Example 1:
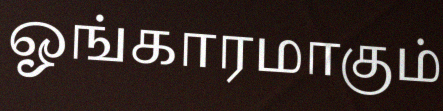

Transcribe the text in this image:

ஓங்காரமாகும்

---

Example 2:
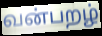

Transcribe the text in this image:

வன்பறழ்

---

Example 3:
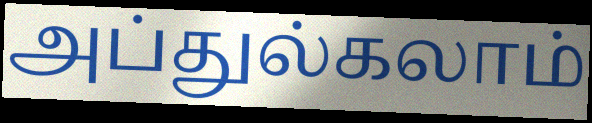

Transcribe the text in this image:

அப்துல்கலாம்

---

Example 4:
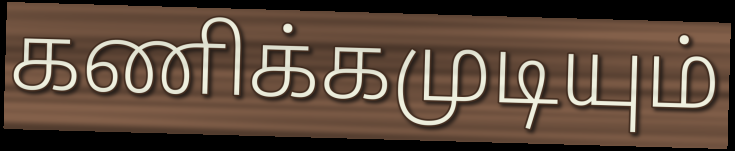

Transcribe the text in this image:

கணிக்கமுடியும்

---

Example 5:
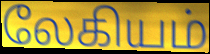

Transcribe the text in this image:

லேகியம்